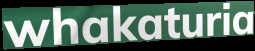
whakaturia